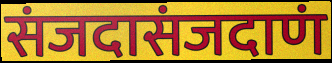
संजदासंजदाणं